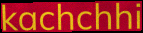
kachchhi